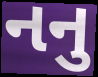
નનુ